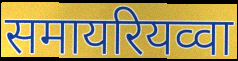
समायरियव्वा